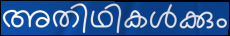
അതിഥികൾക്കും